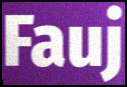
Fauj